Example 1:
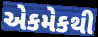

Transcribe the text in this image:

એકમેકથી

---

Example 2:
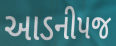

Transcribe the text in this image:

આડનીપજ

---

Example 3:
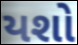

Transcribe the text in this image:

યશો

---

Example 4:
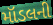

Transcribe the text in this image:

મૉડલની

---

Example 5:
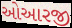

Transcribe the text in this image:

ઓઆરજી